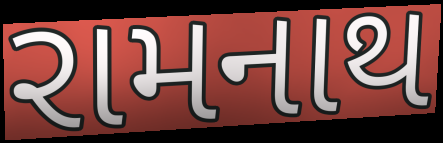
રામનાથ